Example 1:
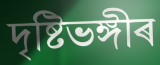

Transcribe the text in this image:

দৃষ্টিভঙ্গীৰ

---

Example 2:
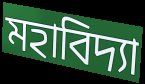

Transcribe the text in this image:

মহাবিদ্যা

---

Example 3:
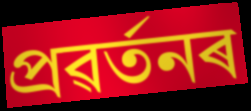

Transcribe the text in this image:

প্ৰৱৰ্তনৰ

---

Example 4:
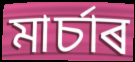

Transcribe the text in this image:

মাৰ্চাৰ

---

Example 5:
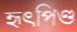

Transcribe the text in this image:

হৃৎপিণ্ড